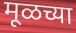
मूळच्या